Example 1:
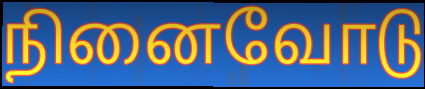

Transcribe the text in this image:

நினைவோடு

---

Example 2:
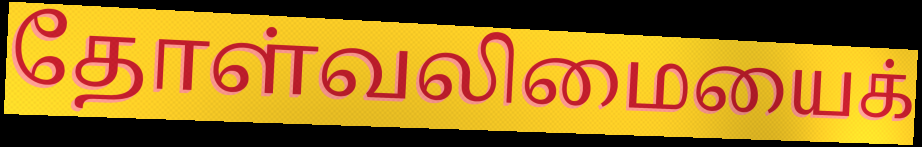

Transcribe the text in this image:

தோள்வலிமையைக்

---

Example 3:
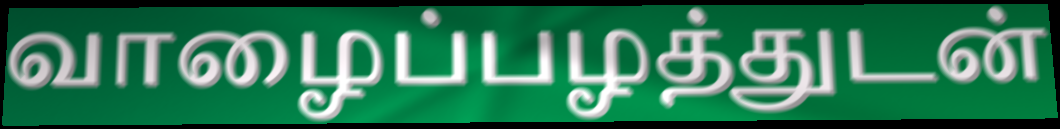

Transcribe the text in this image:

வாழைப்பழத்துடன்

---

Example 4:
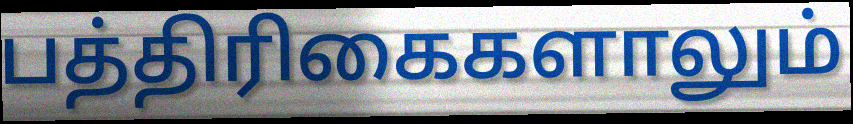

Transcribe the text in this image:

பத்திரிகைகளாலும்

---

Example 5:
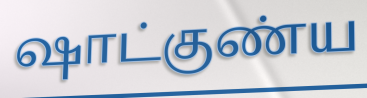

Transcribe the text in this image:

ஷாட்குண்ய